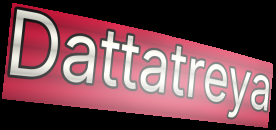
Dattatreya